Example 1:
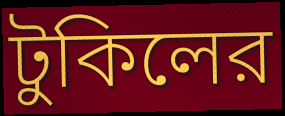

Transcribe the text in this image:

টুকিলের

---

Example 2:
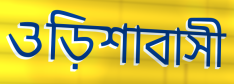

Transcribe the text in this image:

ওড়িশাবাসী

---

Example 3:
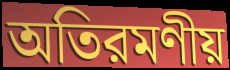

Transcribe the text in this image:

অতিরমণীয়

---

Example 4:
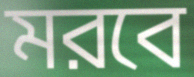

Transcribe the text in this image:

মরবে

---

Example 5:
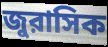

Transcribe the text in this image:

জুরাসিক